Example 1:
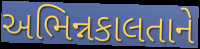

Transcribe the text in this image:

અભિન્નકાલતાને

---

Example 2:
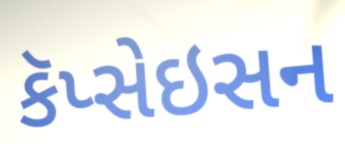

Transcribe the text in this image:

કૅપ્સેઇસન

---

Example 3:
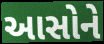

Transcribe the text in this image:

આસોને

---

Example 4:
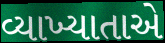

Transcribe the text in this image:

વ્યાખ્યાતાએ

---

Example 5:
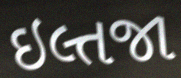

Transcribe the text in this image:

ઇલ્તજા